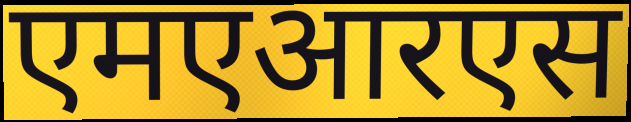
एमएआरएस